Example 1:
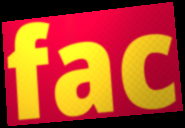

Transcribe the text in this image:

fac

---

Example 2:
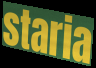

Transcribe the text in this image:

staria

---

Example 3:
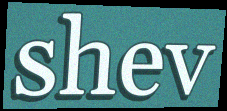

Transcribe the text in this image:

shev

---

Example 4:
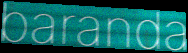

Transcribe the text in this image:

baranda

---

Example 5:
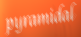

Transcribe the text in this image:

pyramidal